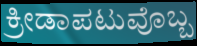
ಕ್ರೀಡಾಪಟುವೊಬ್ಬ